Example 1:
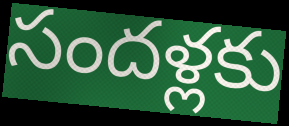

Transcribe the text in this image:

సందళ్లకు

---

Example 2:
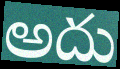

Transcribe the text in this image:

అదు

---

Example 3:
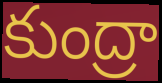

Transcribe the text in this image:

కుంద్రా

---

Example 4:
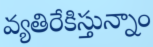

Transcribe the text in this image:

వ్యతిరేకిస్తున్నాం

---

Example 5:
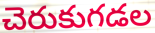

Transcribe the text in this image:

చెరుకుగడల